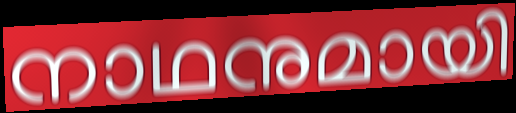
നാഥനുമായി